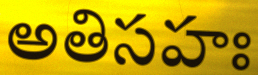
అతిసహః